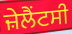
ਜ਼ੇਲੈਂਟਸੀ